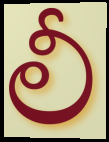
లీ